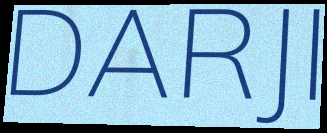
DARJI